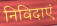
निविदाएं